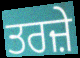
ਤਰਜ਼ੇ